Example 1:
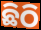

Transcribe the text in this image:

ଛିଠି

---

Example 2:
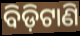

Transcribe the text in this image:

ବିଡ଼ିଟାଣି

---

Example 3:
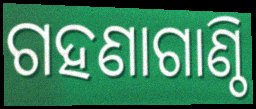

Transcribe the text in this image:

ଗହଣାଗାଣ୍ଠି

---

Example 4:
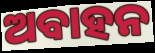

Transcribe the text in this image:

ଅବାହନ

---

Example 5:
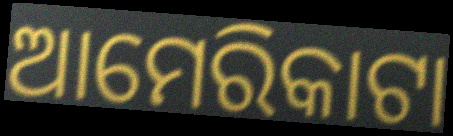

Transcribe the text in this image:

ଆମେରିକାଟା